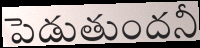
పెడుతుందనీ